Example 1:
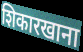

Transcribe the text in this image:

शिकारखाना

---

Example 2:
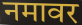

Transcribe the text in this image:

नमावर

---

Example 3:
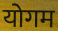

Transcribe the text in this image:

योगम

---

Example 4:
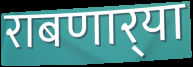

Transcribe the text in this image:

राबणार्‍या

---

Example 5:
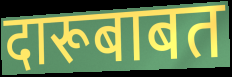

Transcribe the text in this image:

दारूबाबत